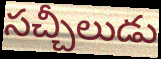
సచ్చీలుడు